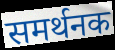
समर्थनक